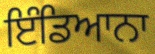
ਇੰਡਿਆਨਾ